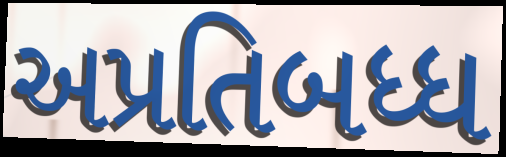
અપ્રતિબધ્ધ